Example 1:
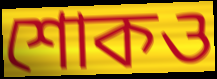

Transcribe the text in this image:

শোকও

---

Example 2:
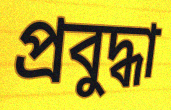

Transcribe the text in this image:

প্রবুদ্ধা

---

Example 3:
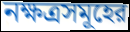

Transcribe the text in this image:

নক্ষত্রসমূহের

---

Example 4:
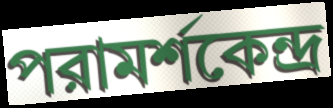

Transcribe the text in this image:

পরামর্শকেন্দ্র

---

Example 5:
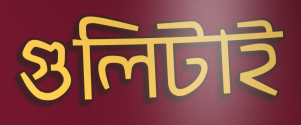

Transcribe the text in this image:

গুলিটাই